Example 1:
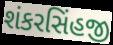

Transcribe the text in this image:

શંકરસિંહજી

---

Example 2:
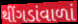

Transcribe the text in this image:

થીંગડાંવાળાં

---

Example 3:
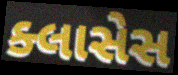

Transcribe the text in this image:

ક્લાસેસ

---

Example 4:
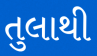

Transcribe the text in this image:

તુલાથી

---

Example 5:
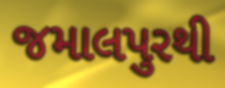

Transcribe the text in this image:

જમાલપુરથી